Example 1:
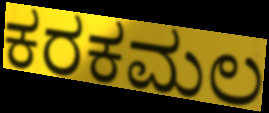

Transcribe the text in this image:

ಕರಕಮಲ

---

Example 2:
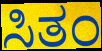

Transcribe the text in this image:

ಸಿತಂ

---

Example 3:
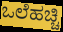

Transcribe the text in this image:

ಒಲೆಹಚ್ಚಿ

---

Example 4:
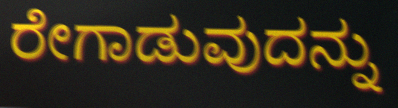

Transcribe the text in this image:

ರೇಗಾಡುವುದನ್ನು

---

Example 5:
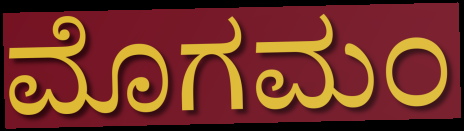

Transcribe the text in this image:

ಮೊಗಮಂ